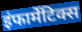
इंफार्मेटिक्स